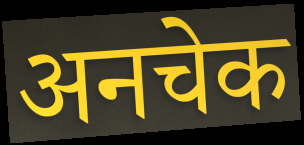
अनचेक